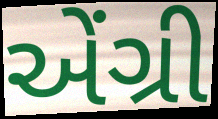
એંગ્રી